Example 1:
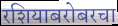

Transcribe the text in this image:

रशियाबरोबरचा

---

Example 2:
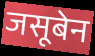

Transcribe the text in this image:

जसूबेन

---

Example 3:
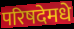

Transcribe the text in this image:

परिषदेमधे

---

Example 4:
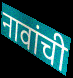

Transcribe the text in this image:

नावांची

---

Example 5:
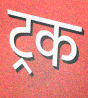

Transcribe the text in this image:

ट्रक